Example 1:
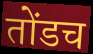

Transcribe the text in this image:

तोंडच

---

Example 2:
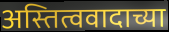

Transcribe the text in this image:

अस्तित्ववादाच्या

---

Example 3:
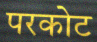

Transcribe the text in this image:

परकोट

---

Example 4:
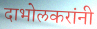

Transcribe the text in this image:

दाभोलकरांनी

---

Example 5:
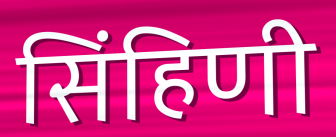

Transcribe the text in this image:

सिंहिणी